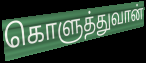
கொளுத்துவான்